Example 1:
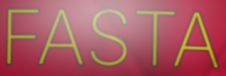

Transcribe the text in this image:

FASTA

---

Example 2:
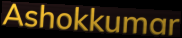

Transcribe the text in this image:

Ashokkumar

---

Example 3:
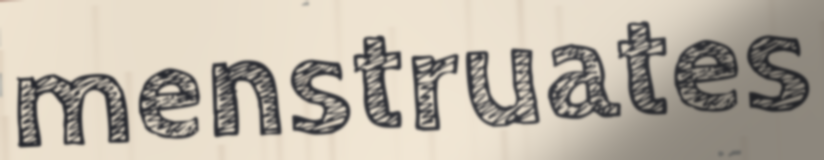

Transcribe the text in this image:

menstruates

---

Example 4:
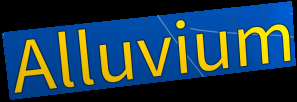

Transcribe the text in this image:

Alluvium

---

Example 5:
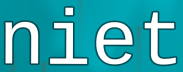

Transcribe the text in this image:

niet